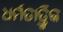
ଧର୍ମତାତ୍ତ୍ଵିକ